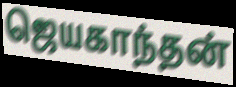
ஜெயகாந்தன்